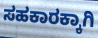
ಸಹಕಾರಕ್ಕಾಗಿ